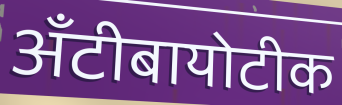
अँटीबायोटीक